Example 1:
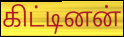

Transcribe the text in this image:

கிட்டினன்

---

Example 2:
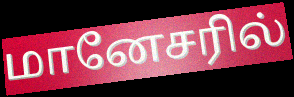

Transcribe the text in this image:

மானேசரில்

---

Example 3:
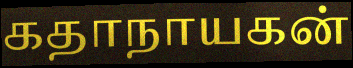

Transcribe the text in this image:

கதாநாயகன்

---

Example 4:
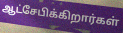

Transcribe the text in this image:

ஆட்சேபிக்கிறார்கள்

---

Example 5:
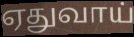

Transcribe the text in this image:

ஏதுவாய்